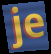
je